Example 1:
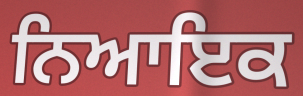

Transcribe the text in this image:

ਨਿਆਇਕ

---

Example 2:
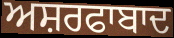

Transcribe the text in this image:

ਅਸ਼ਰਫਾਬਾਦ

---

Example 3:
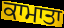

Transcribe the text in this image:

ਕਾਮਾਤਾ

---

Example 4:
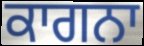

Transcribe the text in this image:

ਕਾਗਨਾ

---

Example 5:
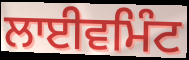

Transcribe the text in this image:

ਲਾਈਵਮਿੰਟ